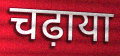
चढ़ाया